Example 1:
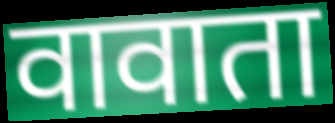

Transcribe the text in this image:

वावाता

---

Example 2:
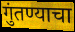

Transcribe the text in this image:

गुंतण्याचा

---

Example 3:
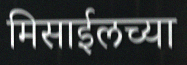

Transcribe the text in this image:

मिसाईलच्या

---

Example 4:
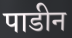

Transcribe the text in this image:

पाडीन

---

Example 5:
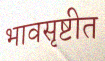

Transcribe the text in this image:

भावसृष्टीत